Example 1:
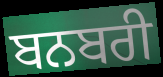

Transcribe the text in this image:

ਬਨਬਰੀ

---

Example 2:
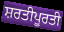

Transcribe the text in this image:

ਸ਼ਰਤੀਪੂਰਤੀ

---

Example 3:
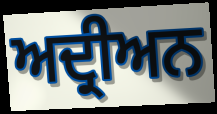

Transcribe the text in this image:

ਅਦ੍ਰੀਅਨ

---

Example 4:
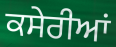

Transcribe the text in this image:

ਕਸੇਰੀਆਂ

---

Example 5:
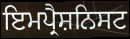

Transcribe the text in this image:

ਇਮਪ੍ਰੈਸ਼ਨਿਸਟ